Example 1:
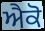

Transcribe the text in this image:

ਐਕੋ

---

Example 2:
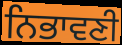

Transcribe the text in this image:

ਨਿਭਾਵਣੀ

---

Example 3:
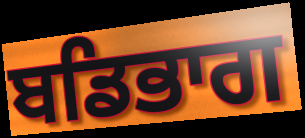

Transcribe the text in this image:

ਬਡਿਭਾਗ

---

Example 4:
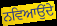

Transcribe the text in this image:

ਨਵਿਆਉਂਦੇ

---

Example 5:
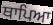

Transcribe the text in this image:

ਥਾਪਿਆ